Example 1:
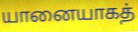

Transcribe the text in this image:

யானையாகத்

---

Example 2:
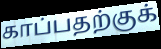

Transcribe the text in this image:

காப்பதற்குக்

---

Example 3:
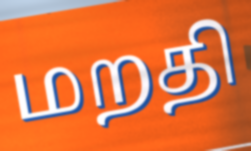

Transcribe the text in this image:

மறதி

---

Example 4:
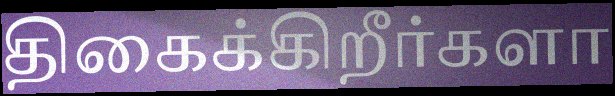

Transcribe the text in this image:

திகைக்கிறீர்களா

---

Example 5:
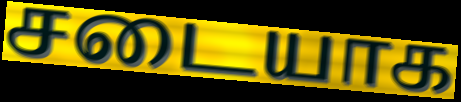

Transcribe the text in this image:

சடையாக